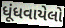
ધૂંધવાયેલો